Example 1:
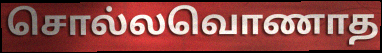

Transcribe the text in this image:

சொல்லவொணாத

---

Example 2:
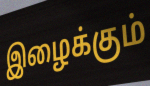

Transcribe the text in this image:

இழைக்கும்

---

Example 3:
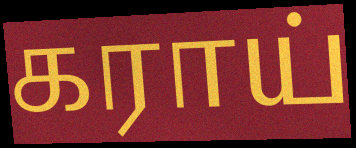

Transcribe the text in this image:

கராய்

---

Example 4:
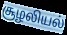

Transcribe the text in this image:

சூழலியல்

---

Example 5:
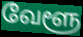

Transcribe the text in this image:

வேளூ